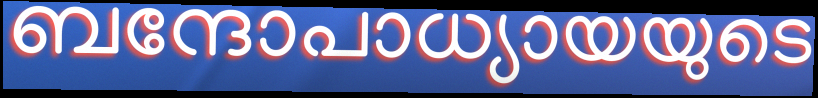
ബന്ദോപാധ്യായയുടെ